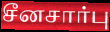
சீனசார்பு